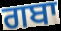
ਗਬਾ